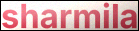
sharmila